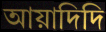
আয়াদিদি